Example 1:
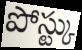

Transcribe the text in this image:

పోస్ట్కు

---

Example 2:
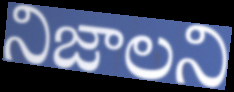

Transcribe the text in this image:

నిజాలని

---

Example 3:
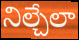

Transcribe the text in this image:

నిల్చేలా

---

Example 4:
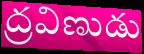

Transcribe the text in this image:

ద్రవిణుడు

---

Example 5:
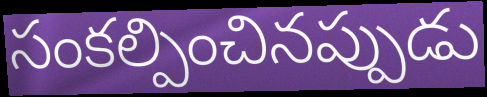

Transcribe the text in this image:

సంకల్పించినప్పుడు